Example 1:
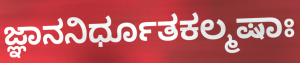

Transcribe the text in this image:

ಜ್ಞಾನನಿರ್ಧೂತಕಲ್ಮಷಾಃ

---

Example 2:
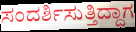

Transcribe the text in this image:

ಸಂದರ್ಶಿಸುತ್ತಿದ್ದಾಗ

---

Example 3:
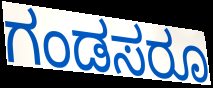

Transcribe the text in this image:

ಗಂಡಸರೂ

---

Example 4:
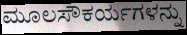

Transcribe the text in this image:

ಮೂಲಸೌಕರ್ಯಗಳನ್ನು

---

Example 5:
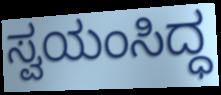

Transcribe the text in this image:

ಸ್ವಯಂಸಿದ್ಧ